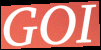
GOI